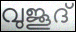
വുജൂദ്